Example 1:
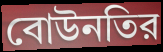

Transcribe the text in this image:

বোউনতির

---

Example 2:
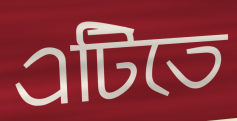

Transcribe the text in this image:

এটিতে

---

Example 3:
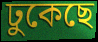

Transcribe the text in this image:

ঢুকেছে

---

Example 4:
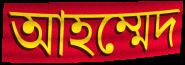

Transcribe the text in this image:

আহম্মেদ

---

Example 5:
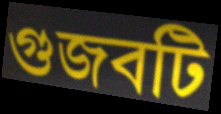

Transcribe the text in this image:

গুজবটি